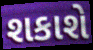
શકાશે